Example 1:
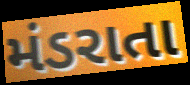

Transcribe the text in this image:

મંડરાતા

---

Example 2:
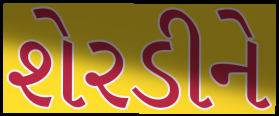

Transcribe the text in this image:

શેરડીને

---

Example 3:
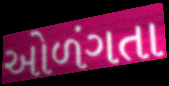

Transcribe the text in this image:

ઓળંગતા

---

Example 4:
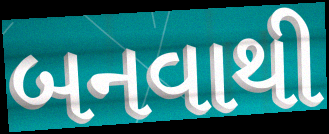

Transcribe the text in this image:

બનવાથી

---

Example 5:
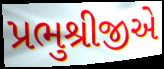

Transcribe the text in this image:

પ્રભુશ્રીજીએ